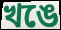
খঙে